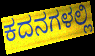
ಕದನಗಳಲ್ಲಿ